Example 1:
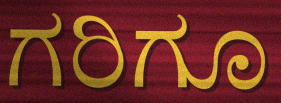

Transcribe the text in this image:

ಗರಿಗೂ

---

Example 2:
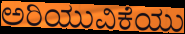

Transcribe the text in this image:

ಅರಿಯುವಿಕೆಯು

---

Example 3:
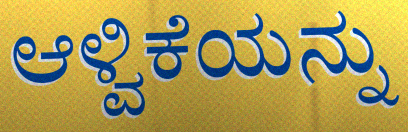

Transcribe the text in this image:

ಆಳ್ವಿಕೆಯನ್ನು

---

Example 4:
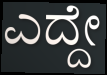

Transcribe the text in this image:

ಎದ್ದೇ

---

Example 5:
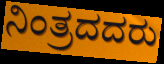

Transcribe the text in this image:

ನಿಂತ್ರದದರು